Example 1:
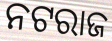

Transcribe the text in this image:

ନଟରାଜ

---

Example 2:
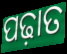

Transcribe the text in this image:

ପଢ଼ାତ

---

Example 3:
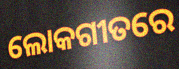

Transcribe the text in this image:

ଲୋକଗୀତରେ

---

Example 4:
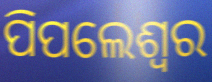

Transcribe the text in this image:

ପିପଲେଶ୍ୱର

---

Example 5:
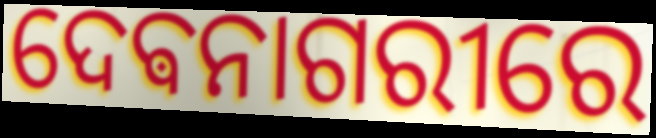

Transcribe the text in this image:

ଦେଵନାଗରୀରେ